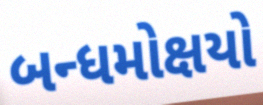
બન્ધમોક્ષયો